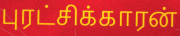
புரட்சிக்காரன்